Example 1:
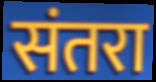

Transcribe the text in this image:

संतरा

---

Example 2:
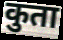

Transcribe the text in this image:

कुता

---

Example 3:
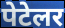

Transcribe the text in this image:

पेटेलर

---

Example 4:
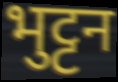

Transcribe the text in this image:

भुट्टन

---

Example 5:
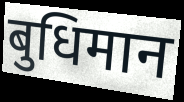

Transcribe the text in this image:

बुधिमान